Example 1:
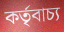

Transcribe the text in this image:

কর্তৃবাচ্য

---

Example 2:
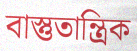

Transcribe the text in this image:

বাস্তুতান্ত্রিক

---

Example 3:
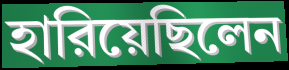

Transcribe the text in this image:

হারিয়েছিলেন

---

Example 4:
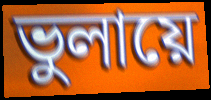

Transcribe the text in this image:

ভুলায়ে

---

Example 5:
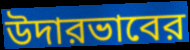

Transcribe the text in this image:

উদারভাবের